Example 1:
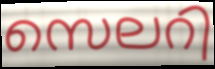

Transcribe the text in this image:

സെലറി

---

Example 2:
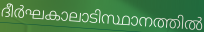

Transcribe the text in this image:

ദീർഘകാലാടിസ്ഥാനത്തിൽ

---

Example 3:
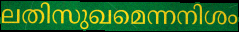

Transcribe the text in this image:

ലതിസുഖമെന്നനിശം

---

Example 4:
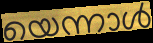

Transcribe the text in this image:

യെന്നാൾ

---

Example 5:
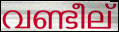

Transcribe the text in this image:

വണ്ടീല്